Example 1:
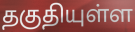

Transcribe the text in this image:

தகுதியுள்ள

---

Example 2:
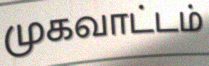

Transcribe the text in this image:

முகவாட்டம்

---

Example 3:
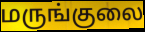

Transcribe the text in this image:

மருங்குலை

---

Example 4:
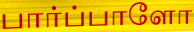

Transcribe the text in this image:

பார்ப்பாளோ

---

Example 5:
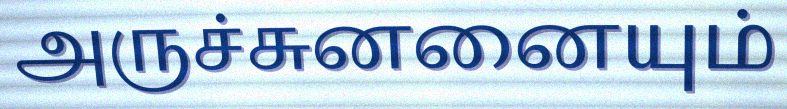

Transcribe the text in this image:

அருச்சுனனையும்